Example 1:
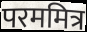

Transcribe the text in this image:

परममित्र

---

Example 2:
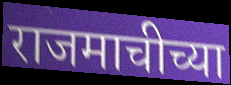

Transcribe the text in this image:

राजमाचीच्या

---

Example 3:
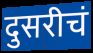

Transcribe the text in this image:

दुसरीचं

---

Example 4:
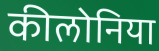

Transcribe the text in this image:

कीलोनिया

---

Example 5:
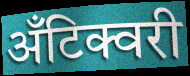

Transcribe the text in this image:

अँटिक्वरी